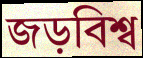
জড়বিশ্ব